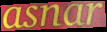
asnar